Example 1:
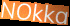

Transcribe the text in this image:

NOkka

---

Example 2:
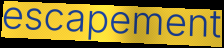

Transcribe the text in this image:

escapement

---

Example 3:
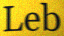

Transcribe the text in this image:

Leb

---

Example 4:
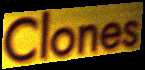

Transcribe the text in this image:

Clones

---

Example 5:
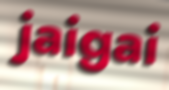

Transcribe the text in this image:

jaigai